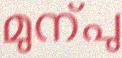
മുന്പു